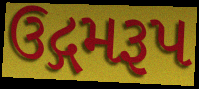
ઉદ્ગમરૂપ